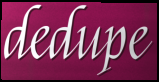
dedupe